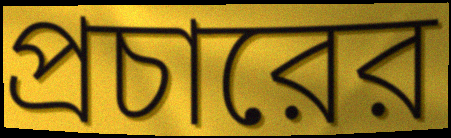
প্রচারের